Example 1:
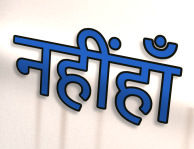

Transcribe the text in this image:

नहींहाँ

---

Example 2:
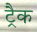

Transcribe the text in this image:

ट्रैक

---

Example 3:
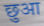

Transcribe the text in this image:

छुआ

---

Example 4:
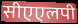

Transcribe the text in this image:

सीएएलपी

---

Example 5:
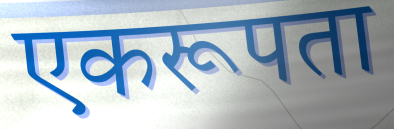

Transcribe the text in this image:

एकरूपता